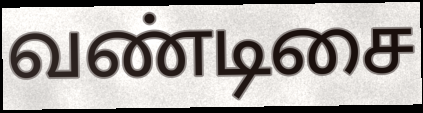
வண்டிசை